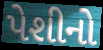
પેશીનો